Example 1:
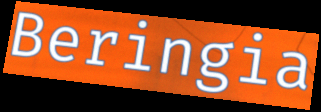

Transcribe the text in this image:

Beringia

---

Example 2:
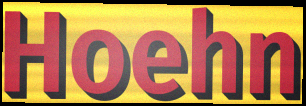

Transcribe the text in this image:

Hoehn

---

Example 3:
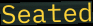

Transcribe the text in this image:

Seated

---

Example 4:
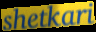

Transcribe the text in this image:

shetkari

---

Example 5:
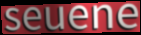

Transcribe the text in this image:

seuene